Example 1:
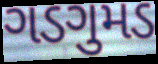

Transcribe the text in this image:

ગડગુમડ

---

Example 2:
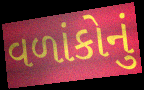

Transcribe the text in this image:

વળાંકોનું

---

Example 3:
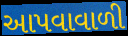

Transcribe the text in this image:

આપવાવાળી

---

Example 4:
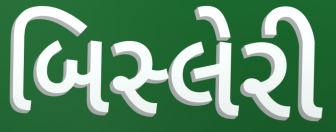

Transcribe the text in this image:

બિસ્લેરી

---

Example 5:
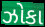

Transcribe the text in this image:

ઝોકા